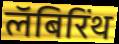
लॅबिरिंथ